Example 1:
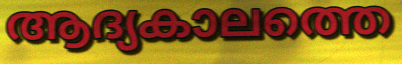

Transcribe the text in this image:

ആദ്യകാലത്തെ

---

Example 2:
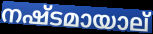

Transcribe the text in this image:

നഷ്ടമായാല്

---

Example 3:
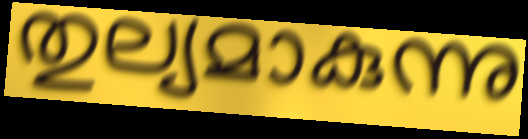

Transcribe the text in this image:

തുല്യമാകുന്നു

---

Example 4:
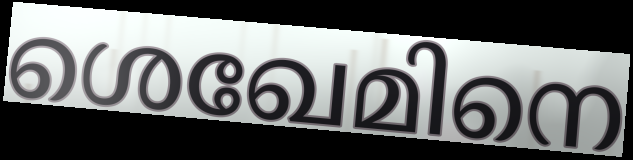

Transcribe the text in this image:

ശെഖേമിനെ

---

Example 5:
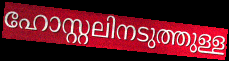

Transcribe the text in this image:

ഹോസ്റ്റലിനടുത്തുള്ള